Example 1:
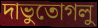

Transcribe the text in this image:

দাভুতোগলু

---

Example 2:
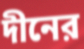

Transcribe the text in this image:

দীনের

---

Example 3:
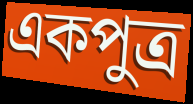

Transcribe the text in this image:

একপুত্র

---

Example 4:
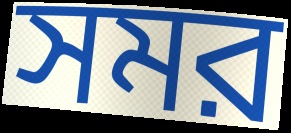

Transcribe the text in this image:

সমর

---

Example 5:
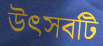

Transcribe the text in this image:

উৎসবটি